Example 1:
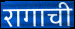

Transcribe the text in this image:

रागाची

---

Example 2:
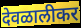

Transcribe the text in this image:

देवळालीकर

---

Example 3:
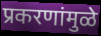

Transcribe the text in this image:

प्रकरणांमुळे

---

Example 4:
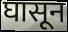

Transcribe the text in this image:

घासून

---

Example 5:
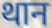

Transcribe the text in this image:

थान